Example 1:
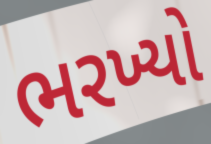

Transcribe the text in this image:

ભરખ્યો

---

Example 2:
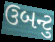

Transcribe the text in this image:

ઉબન્ટુ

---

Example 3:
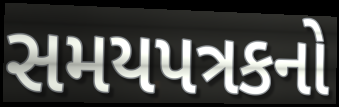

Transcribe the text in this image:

સમયપત્રકનો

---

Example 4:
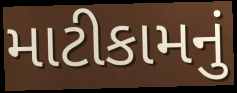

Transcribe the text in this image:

માટીકામનું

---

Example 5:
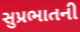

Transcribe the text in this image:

સુપ્રભાતની